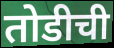
तोडीची